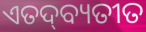
ଏତଦ୍‍ବ୍ୟତୀତ